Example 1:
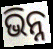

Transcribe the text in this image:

ଭିନ୍ନ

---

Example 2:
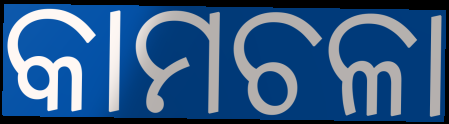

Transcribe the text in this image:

କାମଚଳା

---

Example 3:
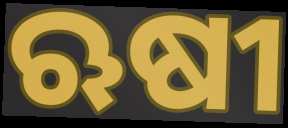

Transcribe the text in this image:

ଋଷୀ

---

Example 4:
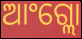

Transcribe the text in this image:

ଆଂଗ୍ଲୋ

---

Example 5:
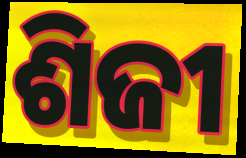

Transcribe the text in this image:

ଶିଜୀ